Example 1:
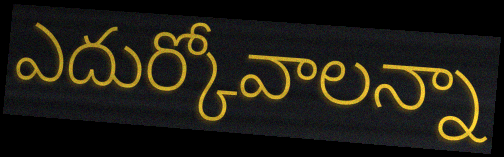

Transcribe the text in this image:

ఎదుర్కోవాలన్నా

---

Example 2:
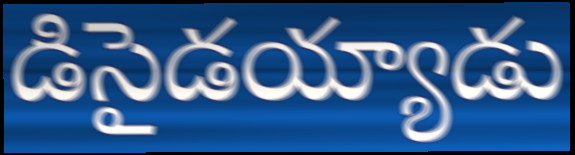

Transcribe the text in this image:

డిసైడయ్యాడు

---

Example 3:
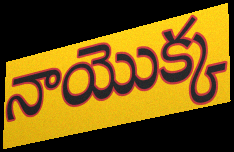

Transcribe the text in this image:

నాయొక్క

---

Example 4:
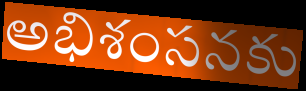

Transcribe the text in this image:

అభిశంసనకు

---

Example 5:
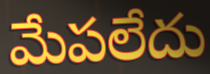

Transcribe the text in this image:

మేపలేదు